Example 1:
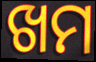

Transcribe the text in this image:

ଖମ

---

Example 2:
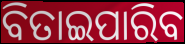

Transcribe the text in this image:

ବିତାଇପାରିବ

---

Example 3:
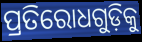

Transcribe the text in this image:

ପ୍ରତିରୋଧଗୁଡ଼ିକୁ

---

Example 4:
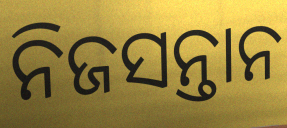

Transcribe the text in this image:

ନିଜସନ୍ତାନ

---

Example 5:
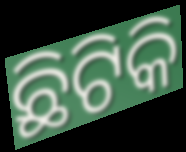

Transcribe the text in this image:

ଛିଟିକି